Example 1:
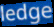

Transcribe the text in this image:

ledge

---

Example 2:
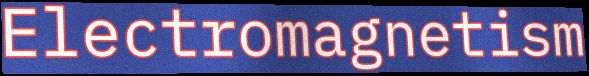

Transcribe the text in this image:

Electromagnetism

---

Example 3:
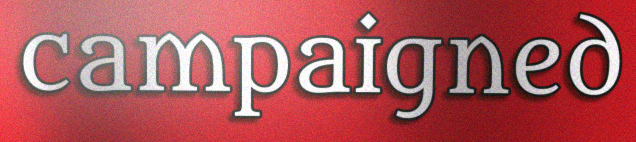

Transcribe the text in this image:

campaigned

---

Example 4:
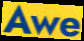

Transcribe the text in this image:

Awe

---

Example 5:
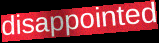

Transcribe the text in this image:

disappointed